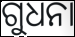
ଗୁଧନା